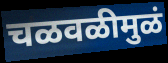
चळवळीमुळं